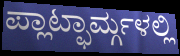
ಪ್ಲಾಟ್ಫಾರ್ಮ್ಗಳಲ್ಲಿ